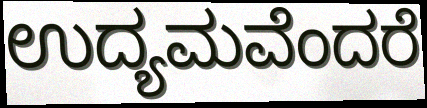
ಉದ್ಯಮವೆಂದರೆ